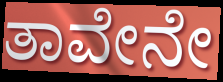
ತಾವೇನೇ